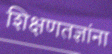
शिक्षणतज्ञांना